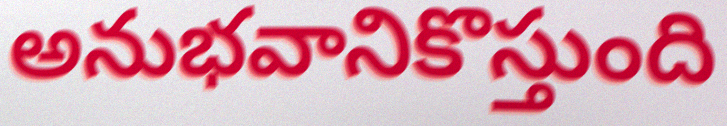
అనుభవానికొస్తుంది